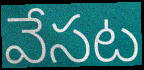
వేసట